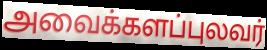
அவைக்களப்புலவர்